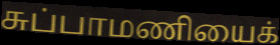
சுப்பாமணியைக்